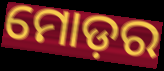
ମୋଡ଼ର